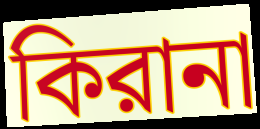
কিরানা